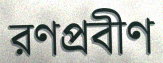
রণপ্রবীণ